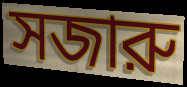
সজারু